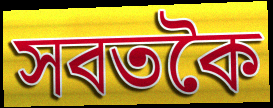
সবতকৈ